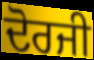
ਦੋਰਜੀ